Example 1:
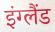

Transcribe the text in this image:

इंग्लैंड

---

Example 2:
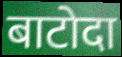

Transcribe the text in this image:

बाटोदा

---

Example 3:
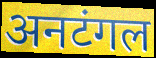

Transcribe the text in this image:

अनटंगल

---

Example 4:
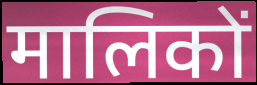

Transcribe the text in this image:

मालिकों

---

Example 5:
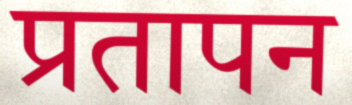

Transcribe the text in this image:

प्रतापन